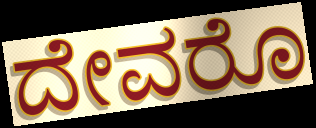
ದೇವರೊ